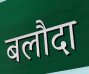
बलौदा